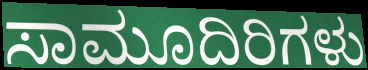
ಸಾಮೂದಿರಿಗಳು